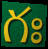
గః